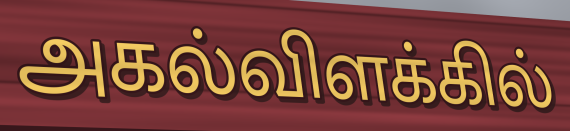
அகல்விளக்கில்